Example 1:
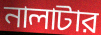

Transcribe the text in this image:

নালাটার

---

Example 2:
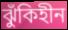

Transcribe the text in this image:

ঝুঁকিহীন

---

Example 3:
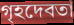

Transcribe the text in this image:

গৃহদেবতা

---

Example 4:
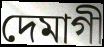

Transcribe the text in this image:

দেমাগী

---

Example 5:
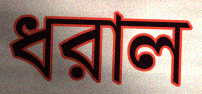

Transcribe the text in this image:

ধরাল